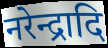
नरेन्द्रादि